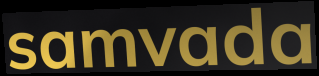
samvada